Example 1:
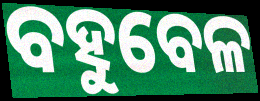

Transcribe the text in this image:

ବହୁବେଳ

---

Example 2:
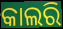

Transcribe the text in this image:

କାଲରି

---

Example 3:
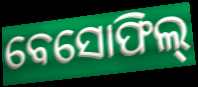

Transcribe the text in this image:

ବେସୋଫିଲ୍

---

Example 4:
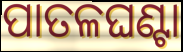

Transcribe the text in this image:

ପାତଳଘଣ୍ଟା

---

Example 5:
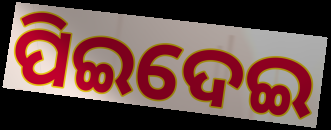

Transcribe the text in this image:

ପିଇଦେଇ